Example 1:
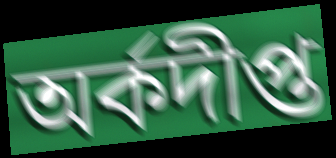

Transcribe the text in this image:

অর্কদীপ্ত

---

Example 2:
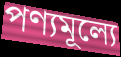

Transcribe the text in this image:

পণ্যমূল্যে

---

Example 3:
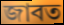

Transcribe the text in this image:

জাবত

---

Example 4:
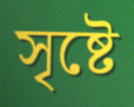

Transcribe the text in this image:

সৃষ্টে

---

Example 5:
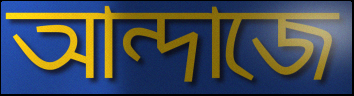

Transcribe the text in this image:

আন্দাজে